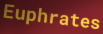
Euphrates